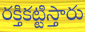
రక్తికట్టిస్తారు